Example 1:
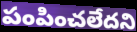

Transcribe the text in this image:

పంపించలేదని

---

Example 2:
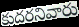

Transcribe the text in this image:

కుదరనివారు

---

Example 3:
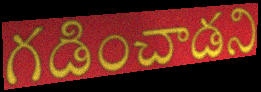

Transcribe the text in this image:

గడించాడని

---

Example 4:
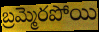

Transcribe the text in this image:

బ్రమ్మెరపోయి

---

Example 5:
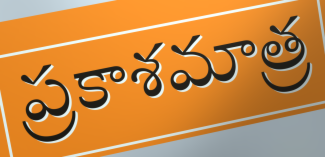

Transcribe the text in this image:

ప్రకాశమాత్ర